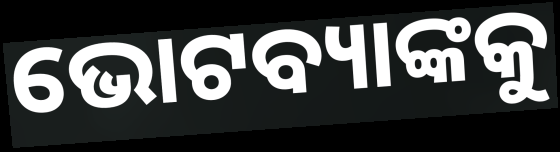
ଭୋଟବ୍ୟାଙ୍କକୁ